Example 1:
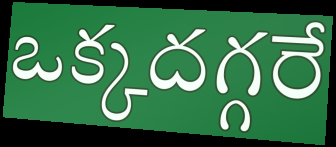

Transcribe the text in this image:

ఒక్కదగ్గరే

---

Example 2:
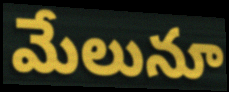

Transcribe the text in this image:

మేలునూ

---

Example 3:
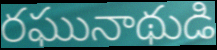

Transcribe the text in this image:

రఘునాథుడి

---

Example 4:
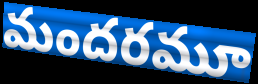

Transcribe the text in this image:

మందరమూ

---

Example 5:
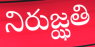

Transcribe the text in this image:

నిరుజ్ఝతి